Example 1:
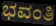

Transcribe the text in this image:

ಭವಂತಿ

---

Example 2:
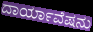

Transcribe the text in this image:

ದಾರ್ಯಾವೆಷನು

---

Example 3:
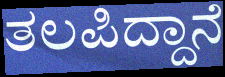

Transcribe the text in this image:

ತಲಪಿದ್ದಾನೆ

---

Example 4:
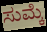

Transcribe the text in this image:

ಸುಮ್ಕೆ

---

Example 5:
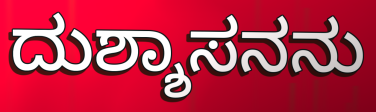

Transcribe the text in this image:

ದುಶ್ಶಾಸನನು